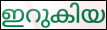
ഇറുകിയ